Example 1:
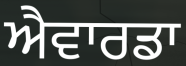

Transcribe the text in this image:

ਐਵਾਰਡਾ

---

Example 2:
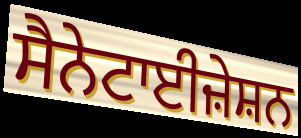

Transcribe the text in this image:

ਸੈਨੇਟਾਈਜ਼ੇਸ਼ਨ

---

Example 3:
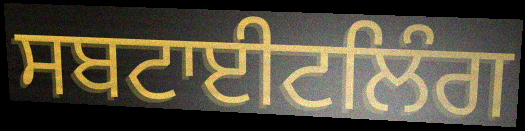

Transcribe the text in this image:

ਸਬਟਾਈਟਲਿੰਗ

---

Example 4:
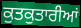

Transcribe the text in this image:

ਕੁਤਕੁਤਾਰੀਆਂ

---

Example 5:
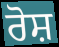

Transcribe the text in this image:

ਰੋਸ਼